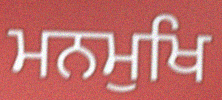
ਮਨਮੁਖਿ